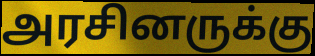
அரசினருக்கு